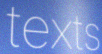
texts